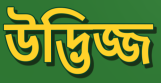
উদ্ভিজ্জ